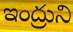
ఇంద్రుని